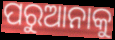
ପରୁଆନାକୁ